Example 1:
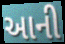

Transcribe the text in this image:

આની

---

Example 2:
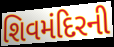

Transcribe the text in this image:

શિવમંદિરની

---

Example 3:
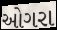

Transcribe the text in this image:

ઓગરા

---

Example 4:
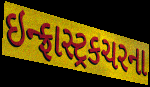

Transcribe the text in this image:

ઇન્ફ્રાસ્ટ્રકચરના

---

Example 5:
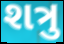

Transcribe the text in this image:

શત્રુ